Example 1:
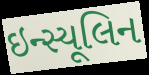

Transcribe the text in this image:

ઇન્સ્યૂલિન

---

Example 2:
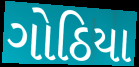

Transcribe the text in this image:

ગોઠિયા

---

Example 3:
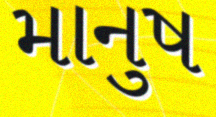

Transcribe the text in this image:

માનુષ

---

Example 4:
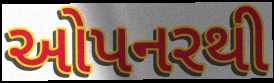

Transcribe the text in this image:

ઓપનરથી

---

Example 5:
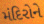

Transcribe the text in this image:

મંદિરોને